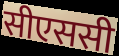
सीएससी